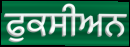
ਫੁਕਸੀਅਨ